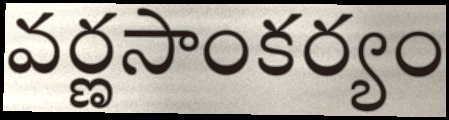
వర్ణసాంకర్యం